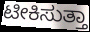
ಟೀಕಿಸುತ್ತಾ